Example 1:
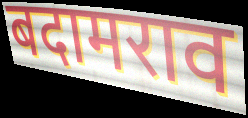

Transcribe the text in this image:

बदामराव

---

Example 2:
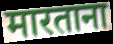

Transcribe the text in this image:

मारताना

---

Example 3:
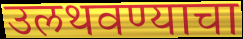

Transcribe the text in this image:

उलथवण्याचा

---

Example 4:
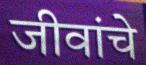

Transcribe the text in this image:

जीवांचे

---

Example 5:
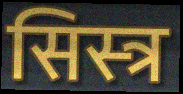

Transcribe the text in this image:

सिस्त्र